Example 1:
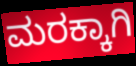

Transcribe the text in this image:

ಮರಕ್ಕಾಗಿ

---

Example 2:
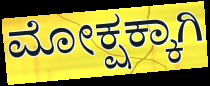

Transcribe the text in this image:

ಮೋಕ್ಷಕ್ಕಾಗಿ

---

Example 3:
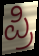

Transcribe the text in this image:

ಪ್ರಿ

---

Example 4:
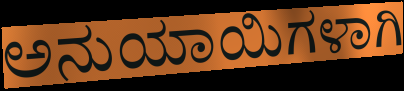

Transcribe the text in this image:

ಅನುಯಾಯಿಗಳಾಗಿ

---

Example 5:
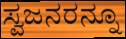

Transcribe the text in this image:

ಸ್ವಜನರನ್ನೂ